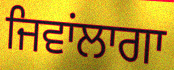
ਜਿਵਾਂਲਾਗਾ